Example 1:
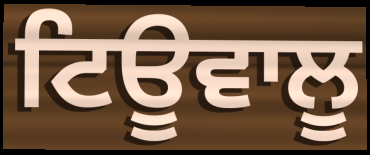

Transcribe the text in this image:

ਟਿਊਵਾਲੂ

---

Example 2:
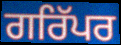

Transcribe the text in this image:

ਗਰਿੱਪਰ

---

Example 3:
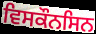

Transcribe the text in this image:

ਵਿਸਕੌਨਸਿਨ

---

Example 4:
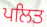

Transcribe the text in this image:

ਪਲਿਤ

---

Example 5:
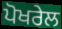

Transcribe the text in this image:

ਪੋਖਰੇਲ